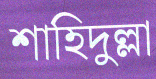
শাহিদুল্লা